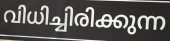
വിധിച്ചിരിക്കുന്ന